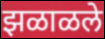
झळाळले